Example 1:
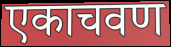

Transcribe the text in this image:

एकाचवण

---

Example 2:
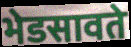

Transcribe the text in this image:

भेडसावते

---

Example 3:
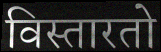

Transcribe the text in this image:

विस्तारतो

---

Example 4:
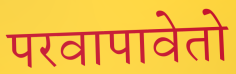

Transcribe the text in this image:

परवापावेतो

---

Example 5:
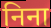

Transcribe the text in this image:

निना